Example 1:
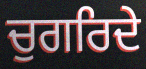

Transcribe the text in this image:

ਚੁਗਰਿਦੇ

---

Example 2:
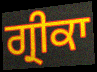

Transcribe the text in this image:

ਗ੍ਰੀਕਾ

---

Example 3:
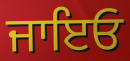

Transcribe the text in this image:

ਜਾਇਓ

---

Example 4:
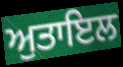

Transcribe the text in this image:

ਅੁਤਾਇਲ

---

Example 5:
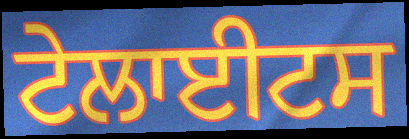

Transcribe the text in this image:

ਟੇਲਾਈਟਸ